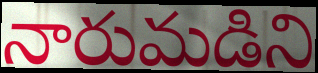
నారుమడిని